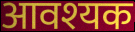
आवश्‍यक